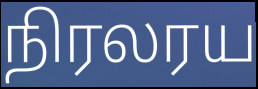
நிரலரய